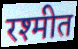
रश्मीत